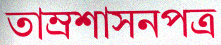
তাম্রশাসনপত্র